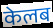
केलब